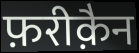
फ़रीक़ैन